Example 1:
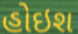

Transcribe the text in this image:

હોઇશ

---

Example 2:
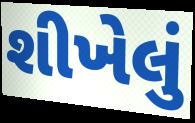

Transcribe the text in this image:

શીખેલું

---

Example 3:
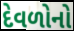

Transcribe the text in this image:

દેવળોનો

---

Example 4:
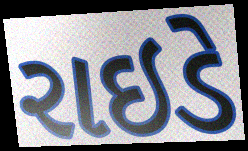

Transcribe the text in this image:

રાઇડે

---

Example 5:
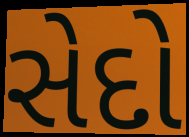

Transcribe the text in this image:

સેદો